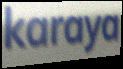
karaya